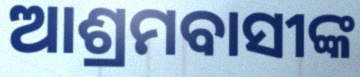
ଆଶ୍ରମବାସୀଙ୍କ